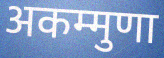
अकम्मुणा